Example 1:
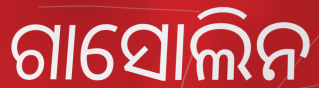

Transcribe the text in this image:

ଗାସୋଲିନ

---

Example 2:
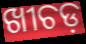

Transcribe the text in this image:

ଖୀଚଡ଼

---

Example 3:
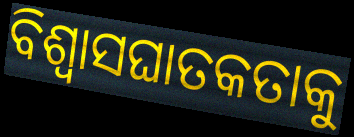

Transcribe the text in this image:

ବିଶ୍ୱାସଘାତକତାକୁ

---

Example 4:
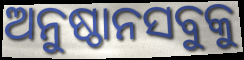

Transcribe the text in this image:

ଅନୁଷ୍ଠାନସବୁକୁ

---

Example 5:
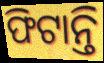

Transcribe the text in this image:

ଫିଟାନ୍ତି